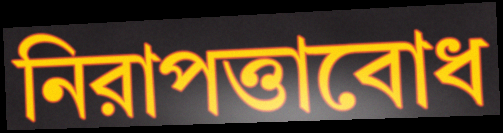
নিরাপত্তাবোধ